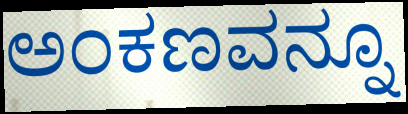
ಅಂಕಣವನ್ನೂ